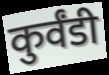
कुर्वंडी